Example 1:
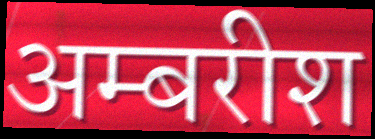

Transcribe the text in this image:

अम्बरीश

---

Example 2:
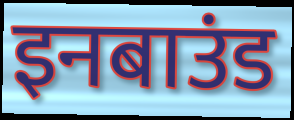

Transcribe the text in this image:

इनबाउंड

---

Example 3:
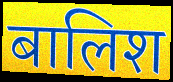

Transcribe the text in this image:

बालिश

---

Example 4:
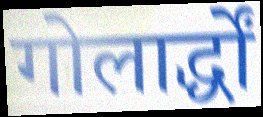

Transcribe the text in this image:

गोलार्द्धों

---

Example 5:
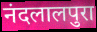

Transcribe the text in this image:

नंदलालपुरा